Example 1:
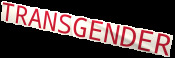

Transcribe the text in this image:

TRANSGENDER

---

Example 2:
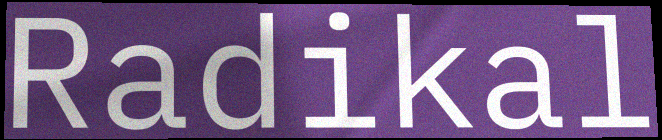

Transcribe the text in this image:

Radikal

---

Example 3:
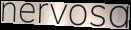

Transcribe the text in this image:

nervosa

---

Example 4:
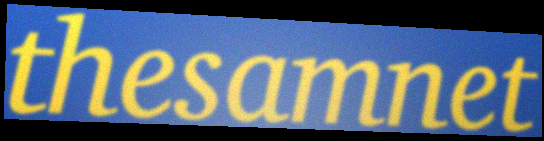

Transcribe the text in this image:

thesamnet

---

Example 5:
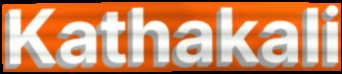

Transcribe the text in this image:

Kathakali